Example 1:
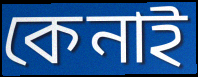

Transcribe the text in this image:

কেনাই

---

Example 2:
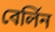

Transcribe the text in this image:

বের্লিন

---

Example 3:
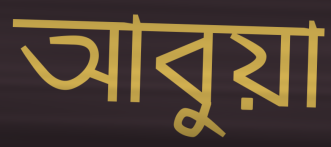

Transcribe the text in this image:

আবুয়া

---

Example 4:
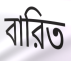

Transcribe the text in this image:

বারিত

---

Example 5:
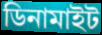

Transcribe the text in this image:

ডিনামাইট